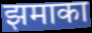
झमाका